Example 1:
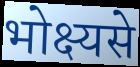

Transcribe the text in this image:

भोक्ष्यसे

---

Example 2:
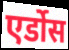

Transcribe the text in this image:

एर्डोस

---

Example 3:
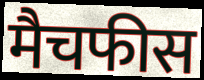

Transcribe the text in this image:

मैचफीस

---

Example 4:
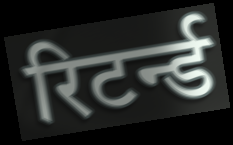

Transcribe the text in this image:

रिटर्न्ड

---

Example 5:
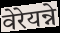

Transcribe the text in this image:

वेरेयन्ने